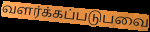
வளர்க்கப்படுபவை